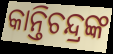
କାନ୍ତିଚନ୍ଦ୍ରଙ୍କ